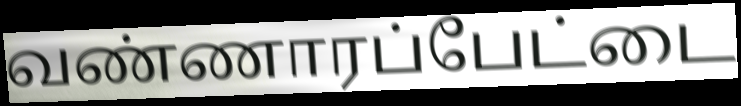
வண்ணாரப்பேட்டை